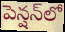
పెన్షన్‌లో